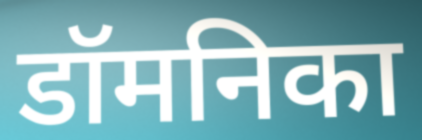
डॉमनिका